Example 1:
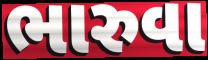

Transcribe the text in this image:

ભારુવા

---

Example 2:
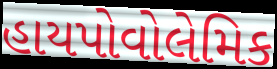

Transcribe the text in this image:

હાયપોવોલેમિક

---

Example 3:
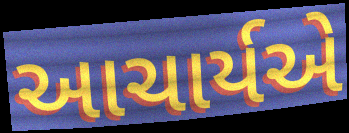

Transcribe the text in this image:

આચાર્યએ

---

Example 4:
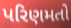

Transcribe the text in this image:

પરિણમતો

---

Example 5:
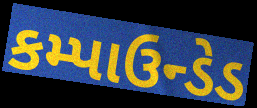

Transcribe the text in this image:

કમ્પાઉન્ડેડ